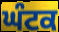
ਘੰਟਕ